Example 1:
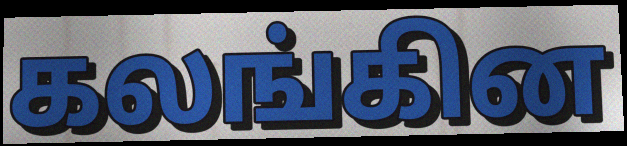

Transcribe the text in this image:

கலங்கின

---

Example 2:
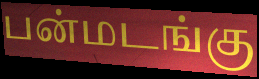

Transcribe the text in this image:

பன்மடங்கு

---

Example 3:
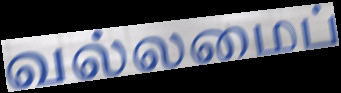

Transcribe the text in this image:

வல்லமைப்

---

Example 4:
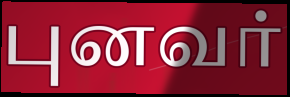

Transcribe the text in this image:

புனவர்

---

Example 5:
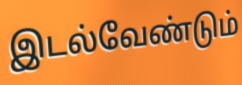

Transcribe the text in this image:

இடல்வேண்டும்